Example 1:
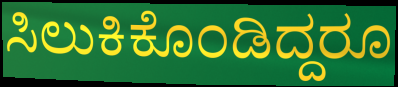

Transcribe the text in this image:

ಸಿಲುಕಿಕೊಂಡಿದ್ದರೂ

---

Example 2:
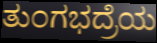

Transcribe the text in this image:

ತುಂಗಭದ್ರೆಯ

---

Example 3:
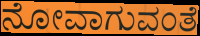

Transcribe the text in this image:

ನೋವಾಗುವಂತೆ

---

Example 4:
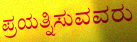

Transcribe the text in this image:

ಪ್ರಯತ್ನಿಸುವವರು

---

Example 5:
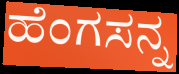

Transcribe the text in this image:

ಹೆಂಗಸನ್ನ